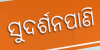
ସୁଦର୍ଶନପାଣି